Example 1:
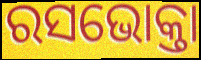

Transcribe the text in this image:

ରସଭୋକ୍ତା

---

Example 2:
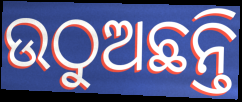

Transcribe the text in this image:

ଉଠୁଅଛନ୍ତି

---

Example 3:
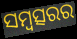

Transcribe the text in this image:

ସମ୍ବତ୍ସରର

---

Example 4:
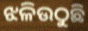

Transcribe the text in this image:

ଝଳିଉଠୁଛି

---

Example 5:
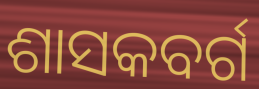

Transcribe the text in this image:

ଶାସକବର୍ଗ